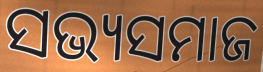
ସଭ୍ୟସମାଜ